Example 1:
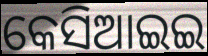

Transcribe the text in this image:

କେସିଆଇଇ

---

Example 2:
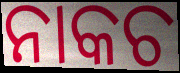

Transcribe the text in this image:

ନାକଚ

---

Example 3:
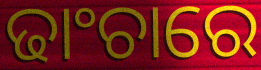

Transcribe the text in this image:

ଢାଂଚାରେ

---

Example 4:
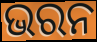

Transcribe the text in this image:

ଭରନ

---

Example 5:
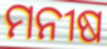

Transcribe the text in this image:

ମନୀଷ